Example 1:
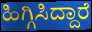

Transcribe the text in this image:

ಹಿಗ್ಗಿಸಿದ್ದಾರೆ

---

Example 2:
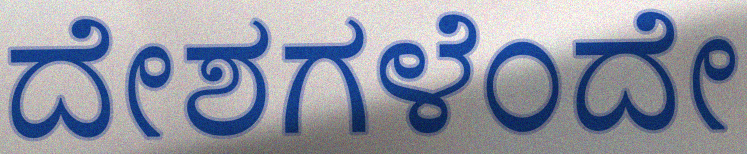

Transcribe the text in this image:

ದೇಶಗಳೆಂದೇ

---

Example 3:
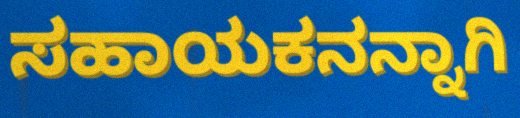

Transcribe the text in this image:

ಸಹಾಯಕನನ್ನಾಗಿ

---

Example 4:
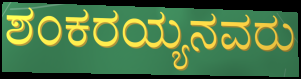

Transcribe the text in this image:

ಶಂಕರಯ್ಯನವರು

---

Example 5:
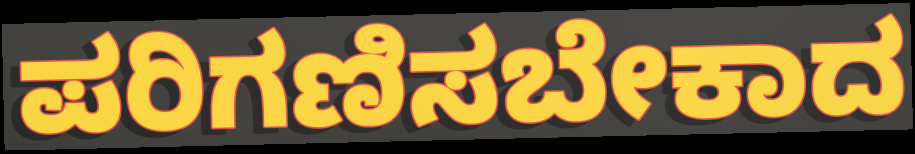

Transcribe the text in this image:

ಪರಿಗಣಿಸಬೇಕಾದ